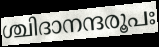
ശ്ചിദാനന്ദരൂപഃ